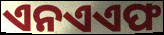
ଏନଏଏଫ